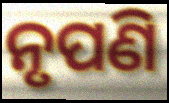
ନୃପଣି